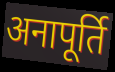
अनापूर्ति